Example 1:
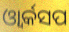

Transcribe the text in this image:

ଓ୍ୱାର୍କସପ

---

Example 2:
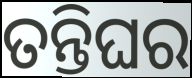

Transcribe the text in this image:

ତନ୍ତିଘର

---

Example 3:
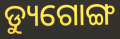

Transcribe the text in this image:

ଡ୍ୟୁଗୋଙ୍ଗ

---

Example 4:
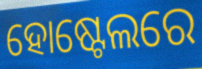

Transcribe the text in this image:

ହୋଷ୍ଟେଲରେ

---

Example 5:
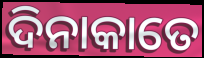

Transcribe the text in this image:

ଦିନାକାତେ